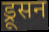
ड्रूसन